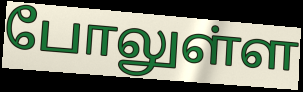
போலுள்ள